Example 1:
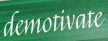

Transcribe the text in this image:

demotivate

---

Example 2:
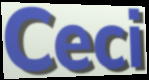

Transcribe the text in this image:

Ceci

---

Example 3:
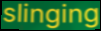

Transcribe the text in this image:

slinging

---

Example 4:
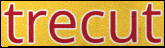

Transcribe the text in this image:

trecut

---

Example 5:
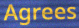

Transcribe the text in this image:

Agrees